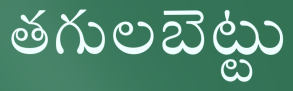
తగులబెట్టు